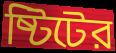
ষ্টিটের